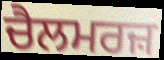
ਚੈਲਮਰਜ਼